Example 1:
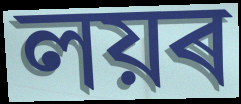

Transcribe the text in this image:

লয়ৰ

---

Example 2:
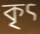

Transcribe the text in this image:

কৃৎ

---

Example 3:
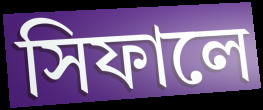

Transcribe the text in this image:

সিফালে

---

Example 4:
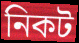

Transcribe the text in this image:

নিকট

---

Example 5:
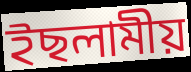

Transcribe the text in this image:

ইছলামীয়